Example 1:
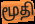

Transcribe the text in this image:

மூதி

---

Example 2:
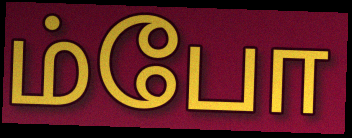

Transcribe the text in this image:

ம்போ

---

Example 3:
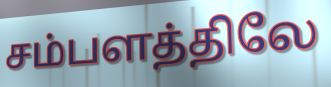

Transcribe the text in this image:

சம்பளத்திலே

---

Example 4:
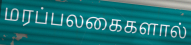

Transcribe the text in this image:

மரப்பலகைகளால்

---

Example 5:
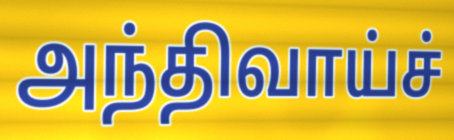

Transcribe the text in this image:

அந்திவாய்ச்